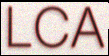
LCA